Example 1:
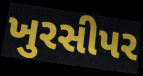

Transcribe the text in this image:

ખુરસીપર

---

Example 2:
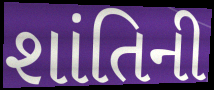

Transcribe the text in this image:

શાંતિની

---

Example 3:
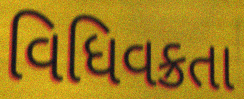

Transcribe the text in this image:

વિધિવક્રતા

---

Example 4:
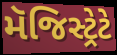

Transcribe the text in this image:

મૅજિસ્ટ્રેટે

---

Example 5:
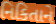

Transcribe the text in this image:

નિકિતાને